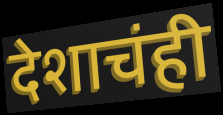
देशाचंही